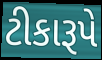
ટીકારૂપે